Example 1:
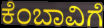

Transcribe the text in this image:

ಕೆಂಬಾವಿಗೆ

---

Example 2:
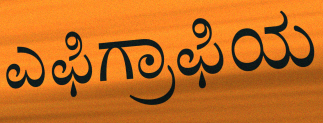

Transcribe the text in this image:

ಎಫಿಗ್ರಾಫಿಯ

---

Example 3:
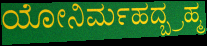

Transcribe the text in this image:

ಯೋನಿರ್ಮಹದ್ಬ್ರಹ್ಮ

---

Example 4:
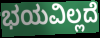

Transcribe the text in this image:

ಭಯವಿಲ್ಲದೆ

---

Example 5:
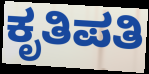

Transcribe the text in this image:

ಕೃತಿಪತಿ